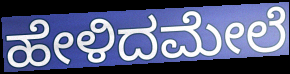
ಹೇಳಿದಮೇಲೆ